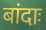
बांदाः